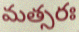
మత్సరః